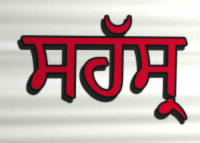
ਸਹੱਸ੍ਰ